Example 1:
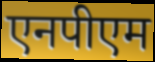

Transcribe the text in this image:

एनपीएम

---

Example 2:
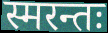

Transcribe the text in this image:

स्मरन्तः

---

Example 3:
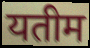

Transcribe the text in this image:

यतीम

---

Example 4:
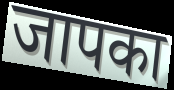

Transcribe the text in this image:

जापका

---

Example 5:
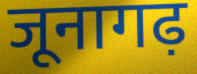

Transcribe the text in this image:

जूनागढ़